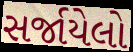
સર્જાયેલો